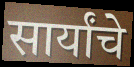
सार्यांचे